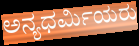
ಅನ್ಯಧರ್ಮಿಯರು